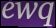
ewq